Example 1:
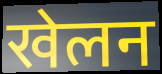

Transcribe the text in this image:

खेलन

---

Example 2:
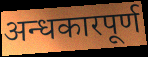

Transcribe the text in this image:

अन्धकारपूर्ण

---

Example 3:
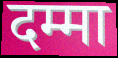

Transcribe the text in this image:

दम्मा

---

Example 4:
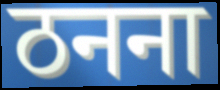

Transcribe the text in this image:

ठनना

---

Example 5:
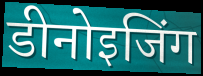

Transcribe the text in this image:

डीनोइजिंग